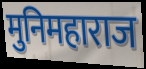
मुनिमहाराज